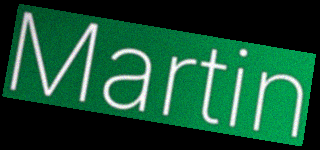
Martin